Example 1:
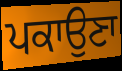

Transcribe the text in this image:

ਪਕਾਉਣਾ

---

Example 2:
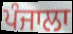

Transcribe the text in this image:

ਪੰਜਾਲਾ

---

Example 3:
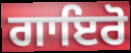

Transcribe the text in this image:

ਗਾਇਰੋ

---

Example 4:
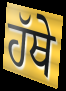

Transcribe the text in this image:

ਹੱਥੇ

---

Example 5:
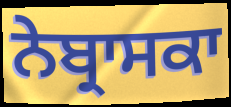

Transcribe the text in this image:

ਨੇਬ੍ਰਾਸਕਾ